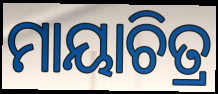
ମାୟାଚିତ୍ର